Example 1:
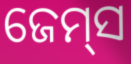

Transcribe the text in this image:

ଜେମ୍‌ସ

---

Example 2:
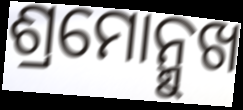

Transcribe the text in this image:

ଶ୍ରମୋନ୍ମୁଖ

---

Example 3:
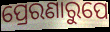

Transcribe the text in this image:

ପ୍ରେରଣାରୁପେ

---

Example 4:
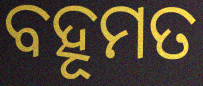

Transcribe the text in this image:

ବହୂମତ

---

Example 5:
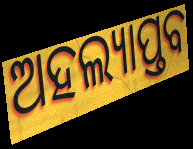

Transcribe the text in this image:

ଅହଲ୍ୟାପ୍ତବ